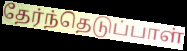
தேர்ந்தெடுப்பாள்